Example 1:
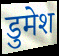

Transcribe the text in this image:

डुमेश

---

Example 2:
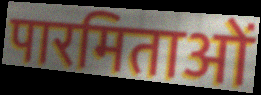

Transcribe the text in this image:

पारमिताओं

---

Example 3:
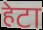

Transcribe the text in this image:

हेटा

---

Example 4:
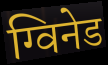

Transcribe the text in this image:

ग्विनेड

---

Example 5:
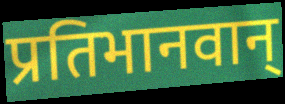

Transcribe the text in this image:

प्रतिभानवान्